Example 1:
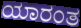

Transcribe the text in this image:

ಯಾರಂತ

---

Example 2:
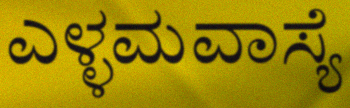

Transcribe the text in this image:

ಎಳ್ಳಮವಾಸ್ಯೆ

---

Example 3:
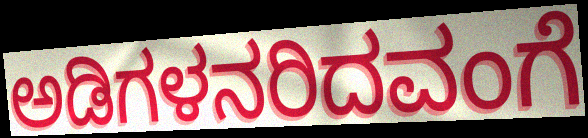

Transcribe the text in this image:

ಅಡಿಗಳನರಿದವಂಗೆ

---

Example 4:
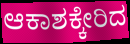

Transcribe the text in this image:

ಆಕಾಶಕ್ಕೇರಿದ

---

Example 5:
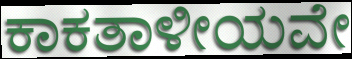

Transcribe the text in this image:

ಕಾಕತಾಳೀಯವೇ